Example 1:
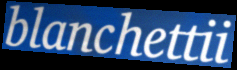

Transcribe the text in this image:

blanchettii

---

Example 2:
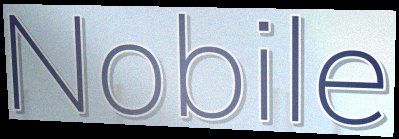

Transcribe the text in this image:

Nobile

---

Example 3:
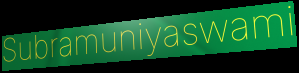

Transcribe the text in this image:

Subramuniyaswami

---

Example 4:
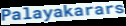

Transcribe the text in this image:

Palayakarars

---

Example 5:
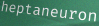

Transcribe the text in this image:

heptaneuron